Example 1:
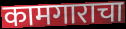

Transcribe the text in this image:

कामगाराचा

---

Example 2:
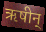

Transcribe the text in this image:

ऋषीन्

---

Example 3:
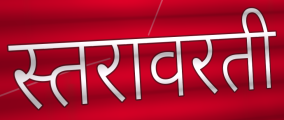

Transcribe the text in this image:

स्तरावरती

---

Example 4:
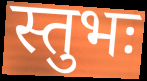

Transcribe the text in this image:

स्तुभः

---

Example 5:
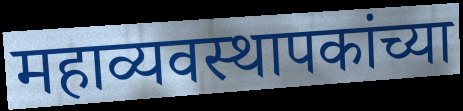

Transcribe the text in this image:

महाव्यवस्थापकांच्या